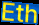
Eth